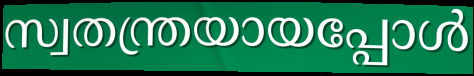
സ്വതന്ത്രയായപ്പോൾ